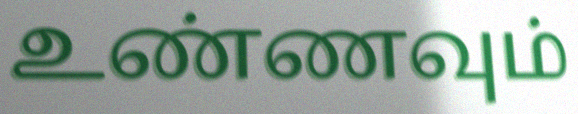
உண்ணவும்